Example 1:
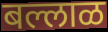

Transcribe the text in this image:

बल्लाळ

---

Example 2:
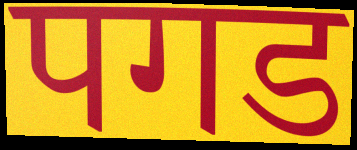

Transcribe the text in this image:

पगड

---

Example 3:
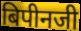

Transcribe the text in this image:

बिपीनजी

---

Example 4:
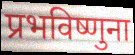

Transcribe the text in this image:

प्रभविष्णुना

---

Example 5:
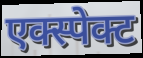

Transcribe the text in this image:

एक्स्पेक्ट